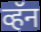
व्हॅन